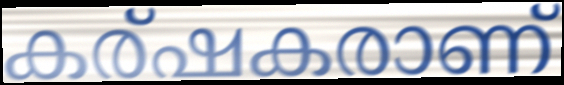
കര്ഷകരാണ്